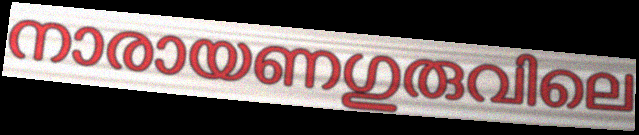
നാരായണഗുരുവിലെ